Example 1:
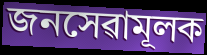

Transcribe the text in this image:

জনসেৱামূলক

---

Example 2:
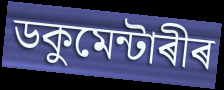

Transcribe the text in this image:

ডকুমেন্টাৰীৰ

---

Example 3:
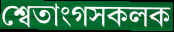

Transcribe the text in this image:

শ্বেতাংগসকলক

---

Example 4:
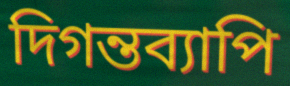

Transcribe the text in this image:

দিগন্তব্যাপি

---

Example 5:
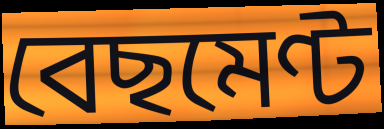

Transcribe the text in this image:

বেছমেণ্ট